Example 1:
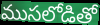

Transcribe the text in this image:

ముసలోడితో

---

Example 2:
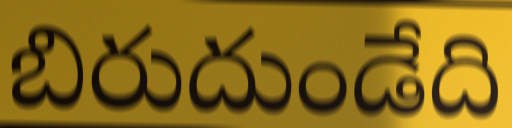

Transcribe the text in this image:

బిరుదుండేది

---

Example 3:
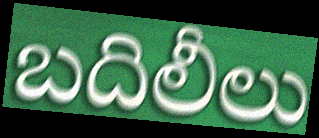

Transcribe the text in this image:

బదిలీలు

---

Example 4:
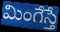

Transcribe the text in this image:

మింగేస్తే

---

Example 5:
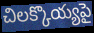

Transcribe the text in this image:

చిలక్కొయ్యపై